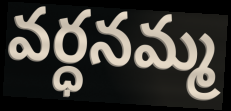
వర్ధనమ్మ